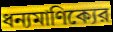
ধন্যমাণিক্যের